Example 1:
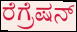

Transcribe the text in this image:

ರೆಗ್ರೆಷನ್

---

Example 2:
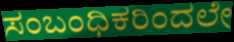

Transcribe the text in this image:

ಸಂಬಂಧಿಕರಿಂದಲೇ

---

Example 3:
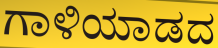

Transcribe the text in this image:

ಗಾಳಿಯಾಡದ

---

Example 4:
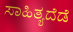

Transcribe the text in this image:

ಸಾಹಿತ್ಯದೆಡೆ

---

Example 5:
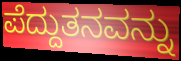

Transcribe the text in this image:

ಪೆದ್ದುತನವನ್ನು